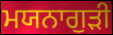
ਮਯਨਾਗੁੜੀ